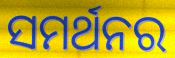
ସମର୍ଥନର